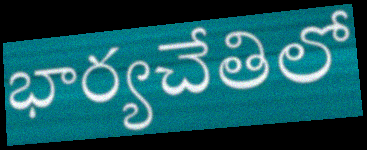
భార్యచేతిలో